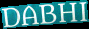
DABHI